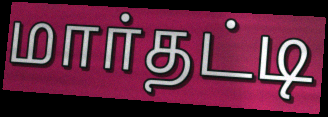
மார்தட்டி